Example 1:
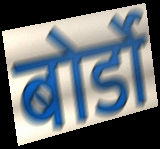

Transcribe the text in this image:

बोर्डो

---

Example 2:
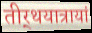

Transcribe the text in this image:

तीर्थयात्रायां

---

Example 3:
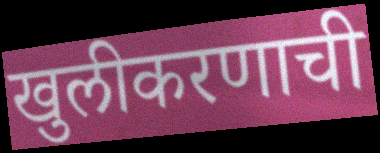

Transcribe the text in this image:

खुलीकरणाची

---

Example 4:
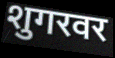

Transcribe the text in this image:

शुगरवर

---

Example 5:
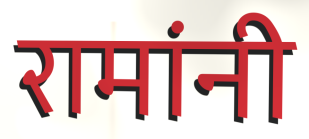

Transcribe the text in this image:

रामांनी